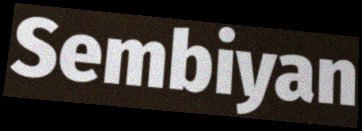
Sembiyan